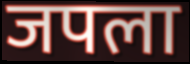
जपला